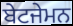
ਬੇਟਜੇਮਨ